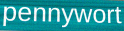
pennywort